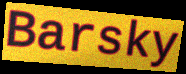
Barsky